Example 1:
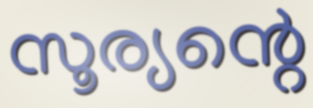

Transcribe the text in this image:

സൂര്യന്റെ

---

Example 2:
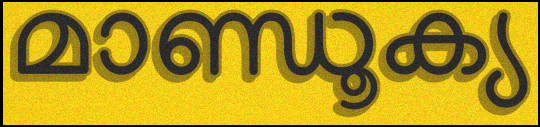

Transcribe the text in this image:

മാണ്ഡൂക്യ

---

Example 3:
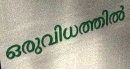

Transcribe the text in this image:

ഒരുവിധത്തിൽ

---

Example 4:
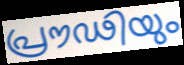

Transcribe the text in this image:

പ്രൗഢിയും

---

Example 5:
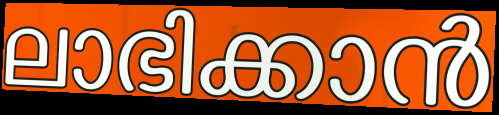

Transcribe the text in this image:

ലാഭിക്കാൻ